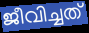
ജീവിച്ചത്